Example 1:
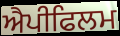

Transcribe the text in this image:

ਐਪੀਫਿਲਮ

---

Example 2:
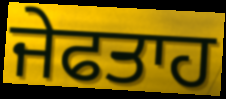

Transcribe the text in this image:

ਜੇਫਤਾਹ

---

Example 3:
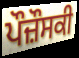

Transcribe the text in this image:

ਪੌਜ਼ੌਸਕੀ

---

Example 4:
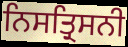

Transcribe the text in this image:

ਨਿਸਤ੍ਰਿਸਨੀ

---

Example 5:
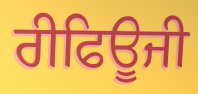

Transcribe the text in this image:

ਰੀਫਿਊਜੀ